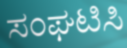
ಸಂಘಟಿಸಿ